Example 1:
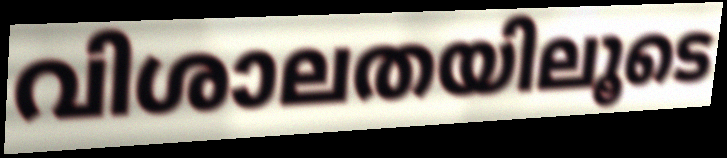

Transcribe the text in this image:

വിശാലതയിലൂടെ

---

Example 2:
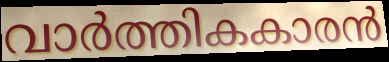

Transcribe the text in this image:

വാർത്തികകാരൻ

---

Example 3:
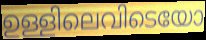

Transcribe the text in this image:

ഉള്ളിലെവിടെയോ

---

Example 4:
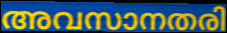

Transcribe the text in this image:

അവസാനതരി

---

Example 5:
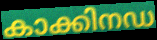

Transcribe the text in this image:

കാക്കിനഡ